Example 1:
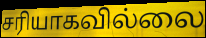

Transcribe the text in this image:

சரியாகவில்லை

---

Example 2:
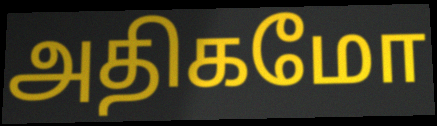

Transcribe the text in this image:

அதிகமோ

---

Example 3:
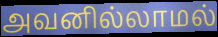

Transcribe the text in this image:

அவனில்லாமல்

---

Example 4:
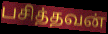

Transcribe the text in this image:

பசித்தவன்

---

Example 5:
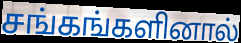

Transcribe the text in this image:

சங்கங்களினால்